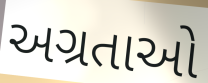
અગ્રતાઓ